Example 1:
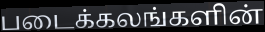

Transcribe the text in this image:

படைக்கலங்களின்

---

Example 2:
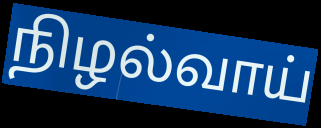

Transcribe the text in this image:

நிழல்வாய்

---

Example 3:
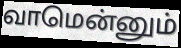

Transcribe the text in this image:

வாமென்னும்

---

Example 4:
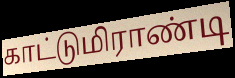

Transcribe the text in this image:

காட்டுமிராண்டி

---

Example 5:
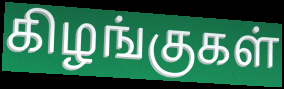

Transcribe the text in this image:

கிழங்குகள்